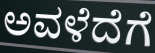
ಅವಳೆದೆಗೆ